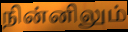
நின்னிலும்